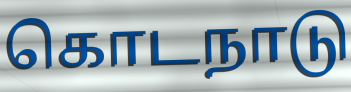
கொடநாடு